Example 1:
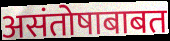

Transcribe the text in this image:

असंतोषाबाबत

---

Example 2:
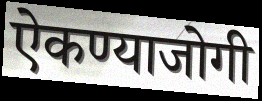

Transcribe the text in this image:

ऐकण्याजोगी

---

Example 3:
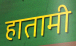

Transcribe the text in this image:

हातामी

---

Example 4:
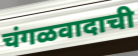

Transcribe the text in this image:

चंगळवादाची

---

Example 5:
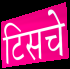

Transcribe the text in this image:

टिसचे